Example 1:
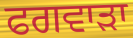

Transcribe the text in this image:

ਫਗਵਾੜਾ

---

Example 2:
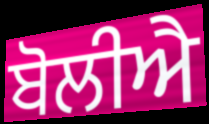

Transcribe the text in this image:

ਬੋਲੀਐ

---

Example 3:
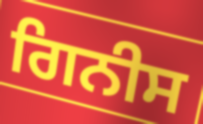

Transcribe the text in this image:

ਗਿਨੀਸ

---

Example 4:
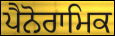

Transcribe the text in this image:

ਪੈਨੋਰਾਮਿਕ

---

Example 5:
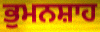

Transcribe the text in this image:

ਭੁਮਨਸ਼ਾਹ